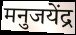
मनुजयेंद्र